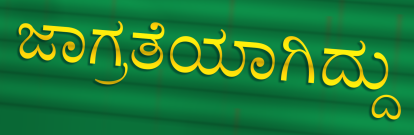
ಜಾಗ್ರತೆಯಾಗಿದ್ದು